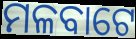
ମଳବାଟେ